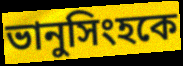
ভানুসিংহকে